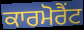
ਕਾਰਮੋਰੈਂਟ